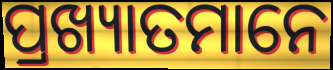
ପ୍ରଖ୍ୟାତମାନେ